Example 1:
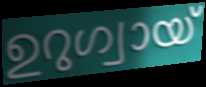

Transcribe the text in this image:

ഉറുഗ്വായ്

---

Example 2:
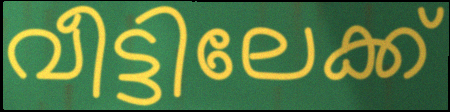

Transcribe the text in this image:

വീട്ടിലേക്ക്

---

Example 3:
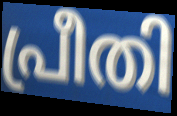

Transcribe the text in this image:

പ്രീതി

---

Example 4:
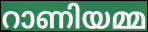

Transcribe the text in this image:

റാണിയമ്മ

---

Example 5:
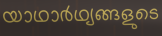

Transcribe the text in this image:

യാഥാർഥ്യങ്ങളുടെ